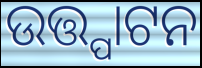
ଉତ୍ତ୍ପାଟନ